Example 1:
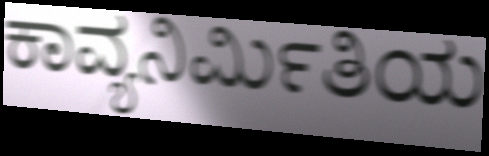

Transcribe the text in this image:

ಕಾವ್ಯನಿರ್ಮಿತಿಯ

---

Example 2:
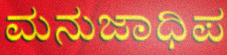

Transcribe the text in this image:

ಮನುಜಾಧಿಪ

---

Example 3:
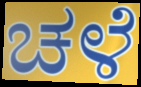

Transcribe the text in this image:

ಚಳೆ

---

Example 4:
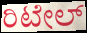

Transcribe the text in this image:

ರಿಟೇಲ್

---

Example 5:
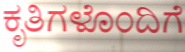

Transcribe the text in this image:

ಕೃತಿಗಳೊಂದಿಗೆ